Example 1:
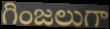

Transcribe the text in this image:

గింజలుగా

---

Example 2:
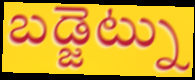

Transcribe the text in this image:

బడ్జెట్ను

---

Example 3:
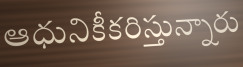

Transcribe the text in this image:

ఆధునికీకరిస్తున్నారు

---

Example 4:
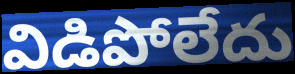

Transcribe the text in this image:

విడిపోలేదు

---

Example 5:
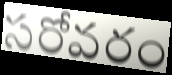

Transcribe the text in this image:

సరోవరం